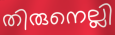
തിരുനെല്ലി